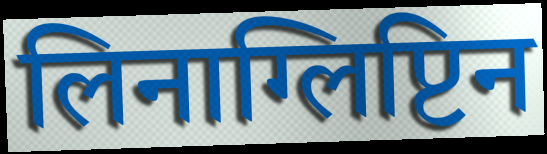
लिनाग्लिप्टिन